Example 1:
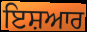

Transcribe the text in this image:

ਇਸ਼ਆਰ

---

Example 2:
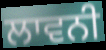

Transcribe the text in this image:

ਲਾਵਨੀ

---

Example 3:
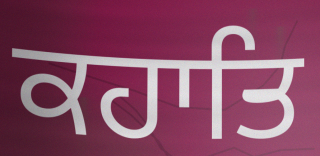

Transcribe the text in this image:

ਕਹਾਤਿ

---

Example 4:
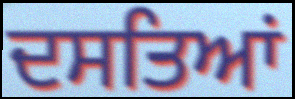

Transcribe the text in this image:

ਦਸਤਿਆਂ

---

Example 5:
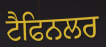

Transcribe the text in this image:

ਟੈਫਿਨਲਰ